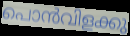
പൊൻവിളക്കു